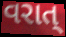
વરાત્